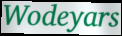
Wodeyars